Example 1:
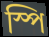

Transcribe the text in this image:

স্পি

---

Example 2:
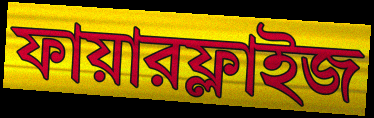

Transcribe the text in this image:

ফায়ারফ্লাইজ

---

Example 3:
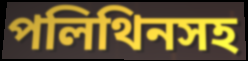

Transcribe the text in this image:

পলিথিনসহ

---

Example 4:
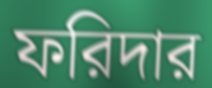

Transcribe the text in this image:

ফরিদার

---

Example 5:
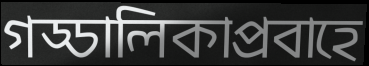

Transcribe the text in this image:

গড্ডালিকাপ্রবাহে